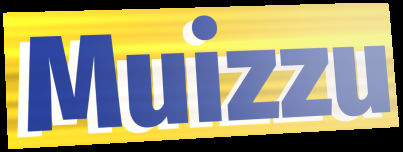
Muizzu